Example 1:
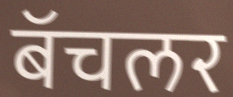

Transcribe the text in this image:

बॅचलर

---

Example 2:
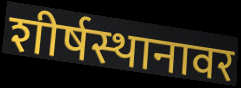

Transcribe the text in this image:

शीर्षस्थानावर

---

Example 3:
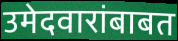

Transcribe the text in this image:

उमेदवारांबाबत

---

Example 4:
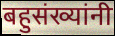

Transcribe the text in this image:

बहुसंख्यांनी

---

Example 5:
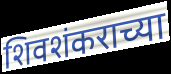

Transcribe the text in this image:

शिवशंकराच्या